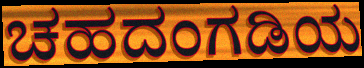
ಚಹದಂಗಡಿಯ